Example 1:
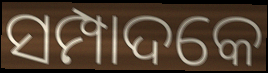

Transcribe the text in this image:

ସମ୍ପାଦକେ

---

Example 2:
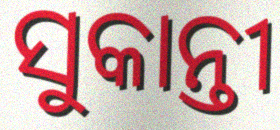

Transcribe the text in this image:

ସୁକାନ୍ତୀ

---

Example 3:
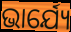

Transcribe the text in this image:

ଭାର୍ଯ୍ଯେ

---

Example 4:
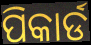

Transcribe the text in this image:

ପିକାର୍ଡ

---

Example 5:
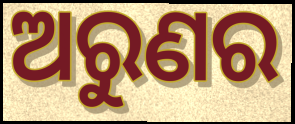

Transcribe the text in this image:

ଅରୁଣର